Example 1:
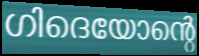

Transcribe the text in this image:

ഗിദെയോന്റെ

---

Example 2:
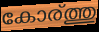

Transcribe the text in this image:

കോര്ത്തു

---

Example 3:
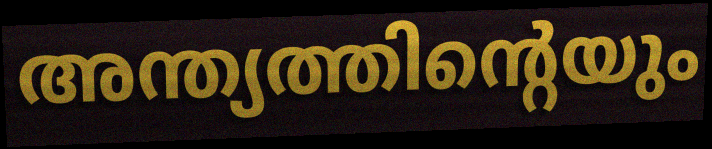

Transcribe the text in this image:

അന്ത്യത്തിന്റെയും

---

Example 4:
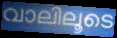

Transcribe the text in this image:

വാലിലൂടെ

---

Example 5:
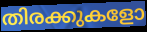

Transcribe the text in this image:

തിരക്കുകളോ